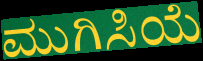
ಮುಗಿಸಿಯೆ